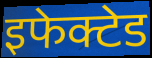
इफेक्टेड